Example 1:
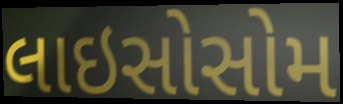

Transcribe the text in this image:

લાઇસોસોમ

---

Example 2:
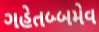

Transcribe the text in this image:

ગહેતબ્બમેવ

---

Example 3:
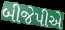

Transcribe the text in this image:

બીજેપીએ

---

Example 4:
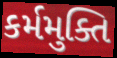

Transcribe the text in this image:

કર્મમુક્તિ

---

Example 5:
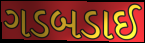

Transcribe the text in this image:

ગડબડાઈ